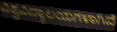
ವಿಶ್ವವಿದ್ಯಾಲಯಗಳಾಗಿವೆ